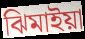
ঝিমাইয়া